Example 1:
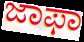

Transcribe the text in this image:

ಜಾಫಾ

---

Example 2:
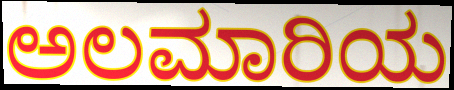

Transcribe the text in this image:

ಅಲಮಾರಿಯ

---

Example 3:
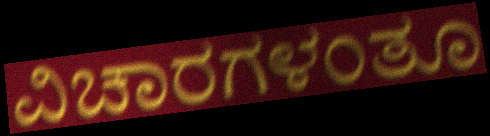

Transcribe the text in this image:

ವಿಚಾರಗಳಂತೂ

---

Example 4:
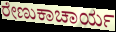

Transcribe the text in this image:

ರೇಣುಕಾಚಾರ್ಯ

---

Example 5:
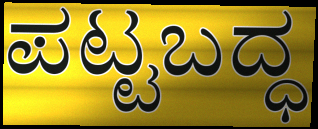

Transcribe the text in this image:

ಪಟ್ಟಬದ್ಧ